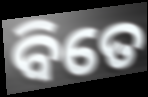
ବିତେ